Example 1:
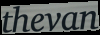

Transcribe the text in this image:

thevan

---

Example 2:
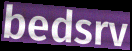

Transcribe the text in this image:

bedsrv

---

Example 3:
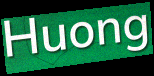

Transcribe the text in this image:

Huong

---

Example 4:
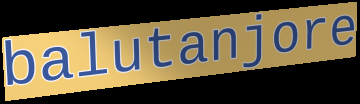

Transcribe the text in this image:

balutanjore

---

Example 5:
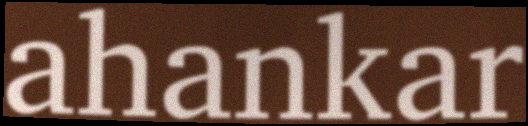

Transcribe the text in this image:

ahankar